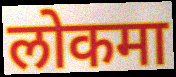
लोकमा